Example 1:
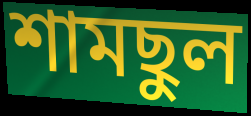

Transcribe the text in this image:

শামছুল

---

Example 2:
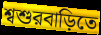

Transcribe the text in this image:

শ্বশুরবাড়িতে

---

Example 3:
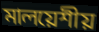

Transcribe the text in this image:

মালয়েশীয়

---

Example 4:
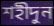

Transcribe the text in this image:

শহীদুন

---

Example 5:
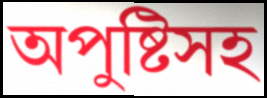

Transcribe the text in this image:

অপুষ্টিসহ